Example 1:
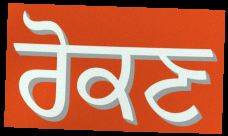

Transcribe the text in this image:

ਰੋਕਣ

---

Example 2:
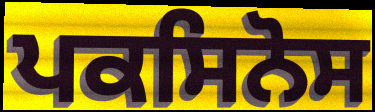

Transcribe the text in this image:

ਪਕਸਿਨੋਸ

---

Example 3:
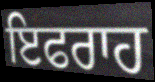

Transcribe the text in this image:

ਇਫਰਾਹ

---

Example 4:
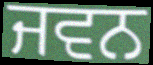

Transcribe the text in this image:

ਜਵਨ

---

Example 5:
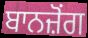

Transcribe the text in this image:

ਬਾਨਜ਼ੋਂਗ